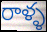
రాళ్ళ